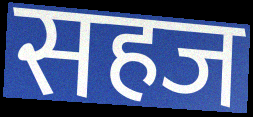
सहज